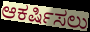
ಆಕರ್ಷಿಸಲು